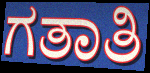
ಗತಾತಿ